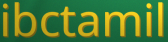
ibctamil